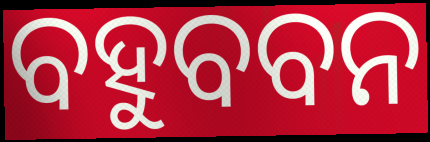
ବହୁବବନ